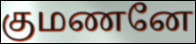
குமணனே